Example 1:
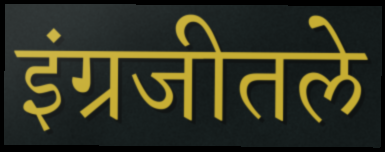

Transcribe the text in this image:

इंग्रजीतले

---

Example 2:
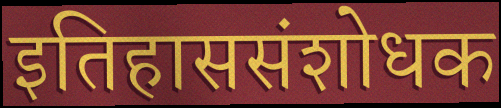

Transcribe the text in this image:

इतिहाससंशोधक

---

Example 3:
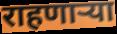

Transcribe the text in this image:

राहणार्‍या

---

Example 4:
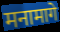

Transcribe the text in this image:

मनामागे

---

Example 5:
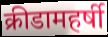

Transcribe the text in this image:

क्रीडामहर्षी